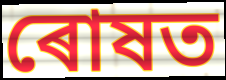
ৰোষত